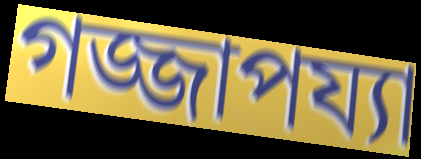
গজ্জাপয্যা